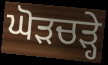
ਘੋੜਚੜ੍ਹੇ